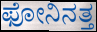
ಫೋನಿನತ್ತ